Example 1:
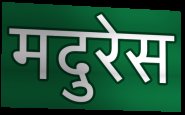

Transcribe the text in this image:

मदुरेस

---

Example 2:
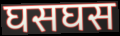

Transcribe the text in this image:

घसघस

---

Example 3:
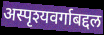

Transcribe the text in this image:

अस्पृश्यवर्गाबद्दल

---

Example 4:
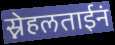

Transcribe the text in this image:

स्नेहलताईनं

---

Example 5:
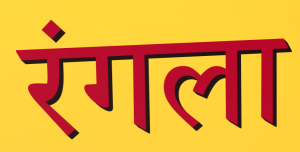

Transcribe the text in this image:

रंगला